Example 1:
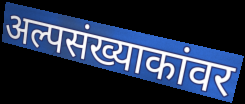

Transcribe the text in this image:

अल्पसंख्याकांवर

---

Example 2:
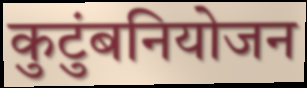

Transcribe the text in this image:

कुटुंबनियोजन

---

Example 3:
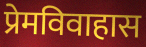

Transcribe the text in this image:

प्रेमविवाहास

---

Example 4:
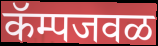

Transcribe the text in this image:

कॅम्पजवळ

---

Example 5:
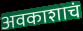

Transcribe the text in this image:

अवकाशाचं